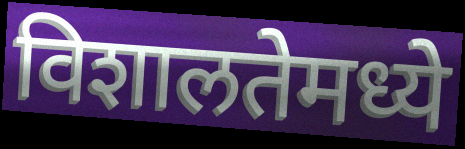
विशालतेमध्ये